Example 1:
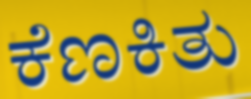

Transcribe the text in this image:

ಕೆಣಕಿತು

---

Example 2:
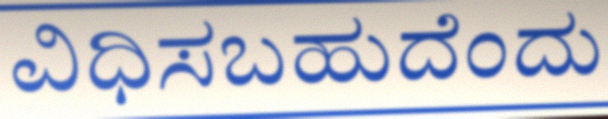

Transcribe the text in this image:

ವಿಧಿಸಬಹುದೆಂದು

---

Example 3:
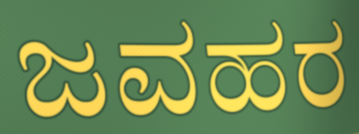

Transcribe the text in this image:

ಜವಹರ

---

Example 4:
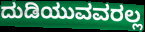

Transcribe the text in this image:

ದುಡಿಯುವವರಲ್ಲ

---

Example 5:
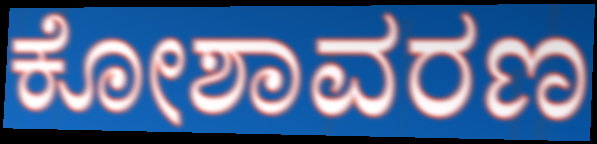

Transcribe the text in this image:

ಕೋಶಾವರಣ